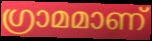
ഗ്രാമമാണ്